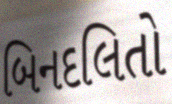
બિનદલિતો